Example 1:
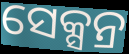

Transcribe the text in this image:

ସେକ୍ସନ୍ର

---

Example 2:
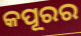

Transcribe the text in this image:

କପୂରର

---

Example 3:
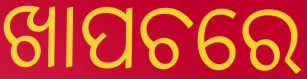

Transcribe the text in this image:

ଖାପଚରେ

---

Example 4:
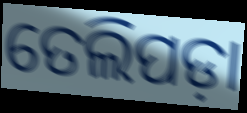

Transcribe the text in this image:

ତେଲିପଡ଼ା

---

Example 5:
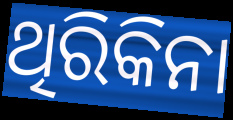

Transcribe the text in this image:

ଥିରିକିନା